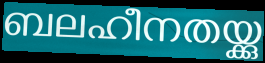
ബലഹീനതയ്ക്കു